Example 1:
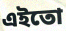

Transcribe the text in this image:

এইতো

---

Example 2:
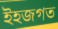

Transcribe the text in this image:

ইহজগত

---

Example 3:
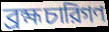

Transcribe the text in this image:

ব্রহ্মচারিগণ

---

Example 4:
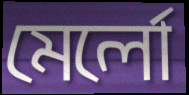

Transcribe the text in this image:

মের্লো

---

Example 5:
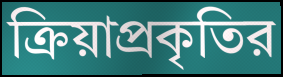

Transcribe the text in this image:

ক্রিয়াপ্রকৃতির